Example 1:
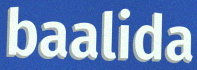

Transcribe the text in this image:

baalida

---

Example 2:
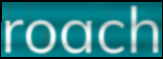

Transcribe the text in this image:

roach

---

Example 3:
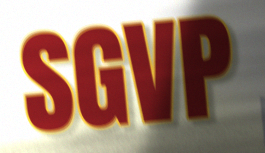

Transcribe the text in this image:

SGVP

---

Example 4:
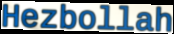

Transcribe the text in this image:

Hezbollah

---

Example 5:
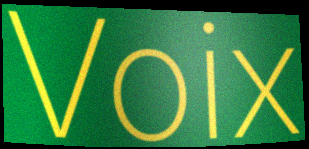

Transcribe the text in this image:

Voix